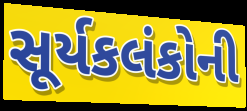
સૂર્યકલંકોની